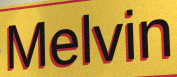
Melvin